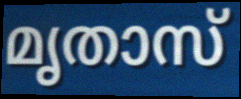
മൃതാസ്